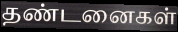
தண்டனைகள்